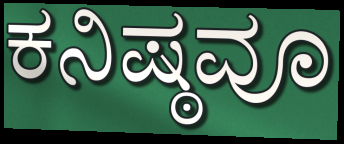
ಕನಿಷ್ಠವೂ